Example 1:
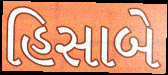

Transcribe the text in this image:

હિસાબે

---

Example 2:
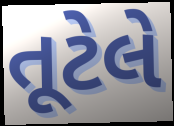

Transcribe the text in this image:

તૂટેલે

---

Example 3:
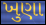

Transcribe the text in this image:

ખુણા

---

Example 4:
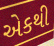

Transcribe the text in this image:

એકથી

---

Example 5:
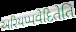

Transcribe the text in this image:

અરિયપ્પવેદિતેતિ